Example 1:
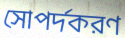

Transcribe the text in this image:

সোপর্দকরণ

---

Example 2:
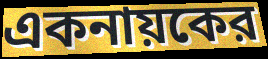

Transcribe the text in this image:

একনায়কের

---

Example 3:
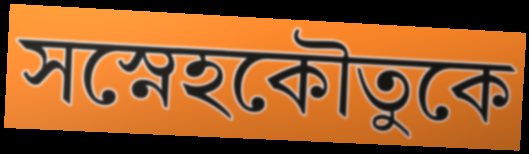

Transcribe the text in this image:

সস্নেহকৌতুকে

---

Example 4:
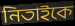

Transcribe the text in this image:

নিতাইকে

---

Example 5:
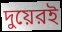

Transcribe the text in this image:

দুয়েরই